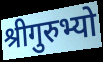
श्रीगुरुभ्यो